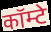
कॉम्टे